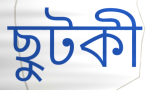
ছুটকী